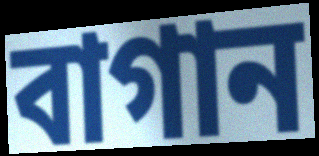
বাগান